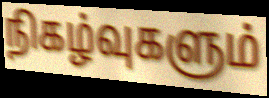
நிகழ்வுகளும்